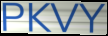
PKVY